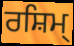
ਰਸ਼ਿਮ੍